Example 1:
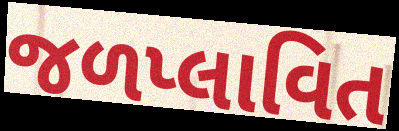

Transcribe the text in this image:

જળપ્લાવિત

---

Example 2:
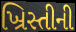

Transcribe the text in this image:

ખ્રિસ્તીની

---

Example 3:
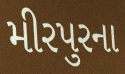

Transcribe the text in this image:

મીરપુરના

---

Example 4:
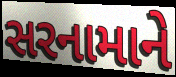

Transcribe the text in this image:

સરનામાને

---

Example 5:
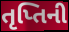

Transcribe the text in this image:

તૃપ્તિની